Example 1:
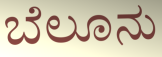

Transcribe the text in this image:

ಬೆಲೂನು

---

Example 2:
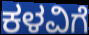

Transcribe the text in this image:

ಕಳವಿಗೆ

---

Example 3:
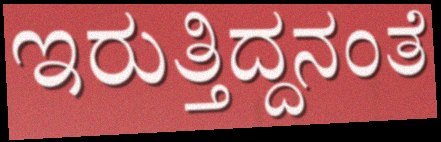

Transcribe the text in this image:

ಇರುತ್ತಿದ್ದನಂತೆ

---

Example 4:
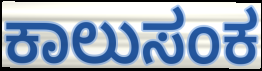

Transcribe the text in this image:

ಕಾಲುಸಂಕ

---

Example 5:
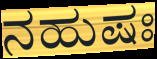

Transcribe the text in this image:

ನಹುಷಃ